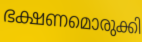
ഭക്ഷണമൊരുക്കി